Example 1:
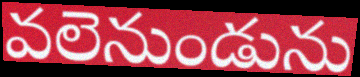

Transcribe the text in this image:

వలెనుండును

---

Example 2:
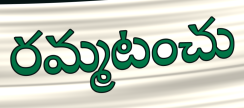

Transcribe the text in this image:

రమ్మటంచు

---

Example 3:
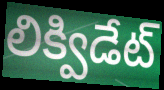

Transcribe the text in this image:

లిక్విడేట్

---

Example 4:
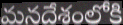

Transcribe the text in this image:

మనదేశంలోకి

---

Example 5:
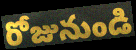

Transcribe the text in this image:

రోజునుండి